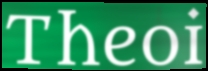
Theoi